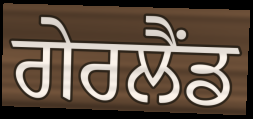
ਗੇਰਲੈਂਡ